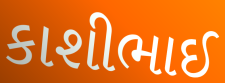
કાશીભાઈ